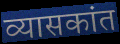
व्यासकांत